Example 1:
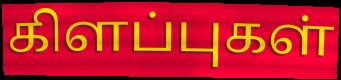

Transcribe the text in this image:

கிளப்புகள்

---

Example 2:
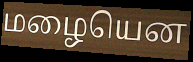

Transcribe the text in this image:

மழையென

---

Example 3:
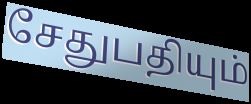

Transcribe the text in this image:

சேதுபதியும்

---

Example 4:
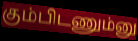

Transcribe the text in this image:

கும்பிடணும்னு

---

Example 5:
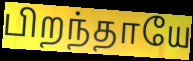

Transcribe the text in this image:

பிறந்தாயே